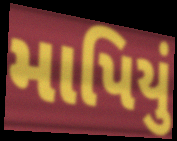
માપિયું